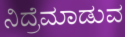
ನಿದ್ರೆಮಾಡುವ